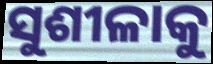
ସୁଶୀଳାକୁ